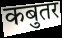
कबुतर